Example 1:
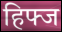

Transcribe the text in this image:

हिफ्ज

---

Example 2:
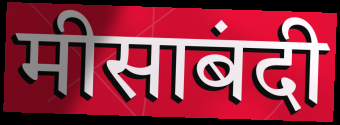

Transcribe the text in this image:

मीसाबंदी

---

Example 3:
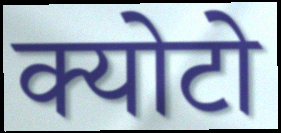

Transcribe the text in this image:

क्योटो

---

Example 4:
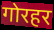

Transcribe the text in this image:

गोरहर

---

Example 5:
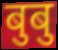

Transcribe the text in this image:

बुबु